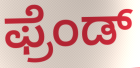
ಫ್ರೆಂಡ್